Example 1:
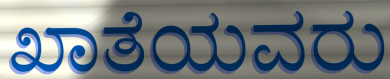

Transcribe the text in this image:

ಖಾತೆಯವರು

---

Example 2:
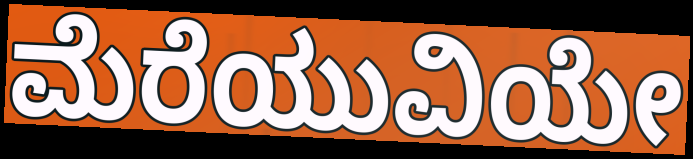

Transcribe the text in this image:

ಮೆರೆಯುವಿಯೇ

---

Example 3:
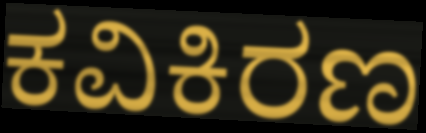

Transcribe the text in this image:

ಕವಿಕಿರಣ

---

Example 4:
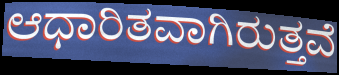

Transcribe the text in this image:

ಆಧಾರಿತವಾಗಿರುತ್ತವೆ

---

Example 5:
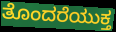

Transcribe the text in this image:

ತೊಂದರೆಯುಕ್ತ